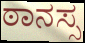
ಠಾನಸ್ಸ